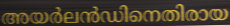
അയർലൻഡിനെതിരായ